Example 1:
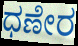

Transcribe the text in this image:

ಧಣೇರ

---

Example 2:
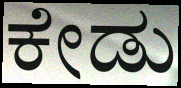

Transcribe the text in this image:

ಕೇಡು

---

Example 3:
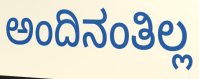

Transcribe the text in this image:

ಅಂದಿನಂತಿಲ್ಲ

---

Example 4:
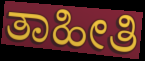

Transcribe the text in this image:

ತಾಹೀತಿ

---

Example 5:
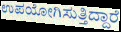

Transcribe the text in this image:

ಉಪಯೋಗಿಸುತ್ತಿದ್ದಾರೆ